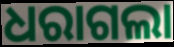
ଧରାଗଲା